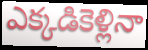
ఎక్కడికెళ్లినా